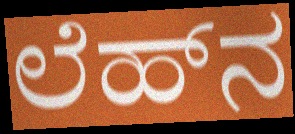
ಲೆಹ್‌ನ